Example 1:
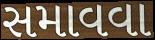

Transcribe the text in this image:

સમાવવા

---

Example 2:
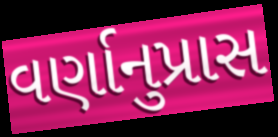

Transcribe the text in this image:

વર્ણાનુપ્રાસ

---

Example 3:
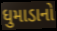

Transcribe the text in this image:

ધુમાડાનો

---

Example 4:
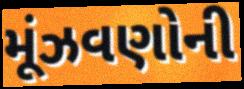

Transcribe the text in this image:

મૂંઝવણોની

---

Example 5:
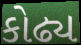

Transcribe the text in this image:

કોઢ્ય